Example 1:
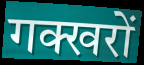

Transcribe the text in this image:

गक्खरों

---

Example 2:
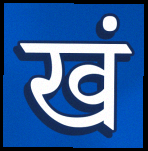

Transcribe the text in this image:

खं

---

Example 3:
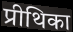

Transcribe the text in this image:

प्रीथिका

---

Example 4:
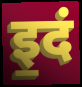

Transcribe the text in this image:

इ॒दं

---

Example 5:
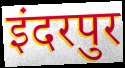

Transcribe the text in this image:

इंदरपुर